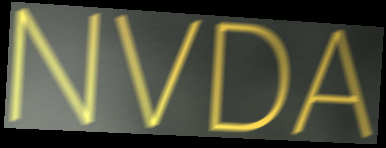
NVDA